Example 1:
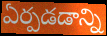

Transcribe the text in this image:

ఏర్పడడాన్ని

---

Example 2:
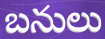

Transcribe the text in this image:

బనులు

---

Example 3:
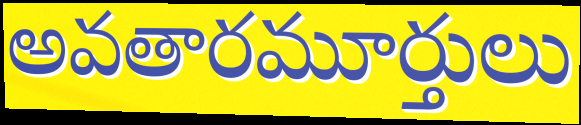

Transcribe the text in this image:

అవతారమూర్తులు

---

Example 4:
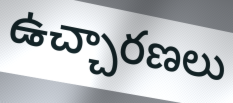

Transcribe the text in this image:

ఉచ్చారణలు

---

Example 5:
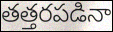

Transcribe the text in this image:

తత్తరపడినా